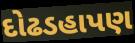
દોઢડહાપણ